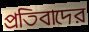
প্রতিবাদের